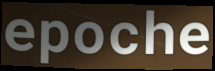
epoche